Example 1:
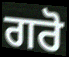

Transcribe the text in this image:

ਗਰੋ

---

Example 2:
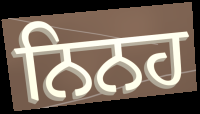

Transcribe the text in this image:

ਨਿਨਹ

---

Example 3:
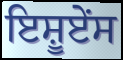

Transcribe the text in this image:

ਇਸ਼ੂਏਂਸ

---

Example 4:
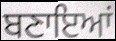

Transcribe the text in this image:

ਬਣਾਇਆਂ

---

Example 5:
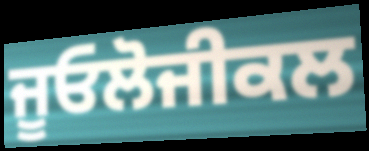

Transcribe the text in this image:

ਜੂਓਲੋਜੀਕਲ